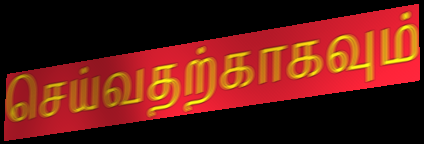
செய்வதற்காகவும்